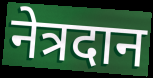
नेत्रदान